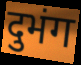
दुभंग